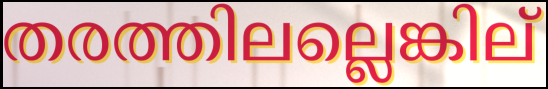
തരത്തിലല്ലെങ്കില്